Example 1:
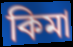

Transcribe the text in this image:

কিমা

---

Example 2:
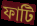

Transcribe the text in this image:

ফাটি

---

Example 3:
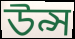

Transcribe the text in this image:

উন্স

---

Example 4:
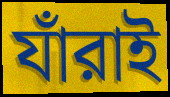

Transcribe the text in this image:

যাঁরাই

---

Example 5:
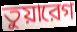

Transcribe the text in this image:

তুয়ারেগ